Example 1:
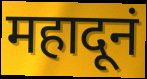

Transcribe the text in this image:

महादूनं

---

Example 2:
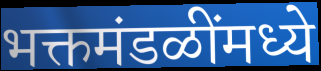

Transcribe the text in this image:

भक्तमंडळींमध्ये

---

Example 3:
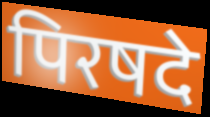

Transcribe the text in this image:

पिरषदे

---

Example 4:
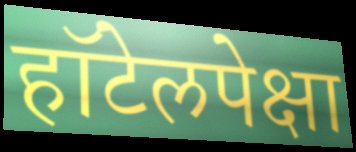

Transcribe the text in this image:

हॉटेलपेक्षा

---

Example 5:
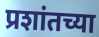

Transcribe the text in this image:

प्रशांतच्या